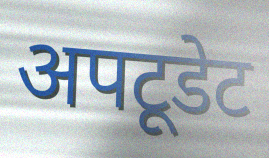
अपटूडेट